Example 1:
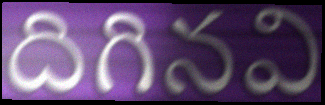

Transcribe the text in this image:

దిగినవి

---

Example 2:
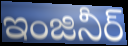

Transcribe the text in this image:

ఇంజినీర్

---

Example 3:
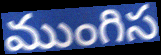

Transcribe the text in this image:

ముంగిస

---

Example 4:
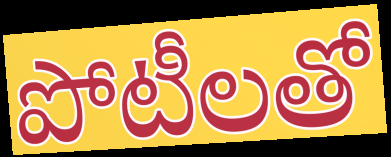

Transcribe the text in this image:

పోటీలతో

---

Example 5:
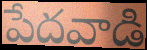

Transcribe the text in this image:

పేదవాడి